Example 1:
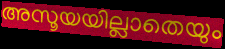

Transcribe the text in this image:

അസൂയയില്ലാതെയും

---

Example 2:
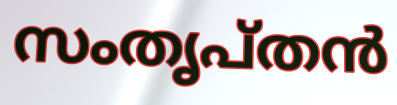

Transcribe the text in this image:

സംതൃപ്തൻ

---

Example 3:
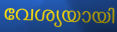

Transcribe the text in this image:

വേശ്യയായി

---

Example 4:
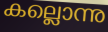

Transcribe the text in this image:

കല്ലൊന്നു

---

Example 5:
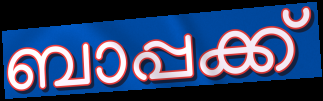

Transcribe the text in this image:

ബാപ്പക്ക്